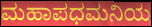
ಮಹಾಪಧಮನಿಯ